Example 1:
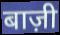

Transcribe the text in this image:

बाज़ी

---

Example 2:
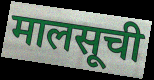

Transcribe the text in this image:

मालसूची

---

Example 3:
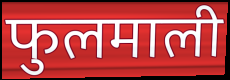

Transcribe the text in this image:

फुलमाली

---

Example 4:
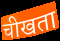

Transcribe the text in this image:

चीखता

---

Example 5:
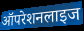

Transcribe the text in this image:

ऑपरेशनलाइज